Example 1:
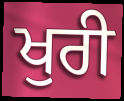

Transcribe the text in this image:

ਖੁਰੀ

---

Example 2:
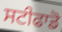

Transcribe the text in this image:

ਸਟੀਫਾਡੋ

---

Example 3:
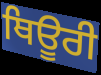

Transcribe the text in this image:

ਥਿਊਰੀ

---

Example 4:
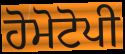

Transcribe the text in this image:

ਹੋਮੋਟੋਪੀ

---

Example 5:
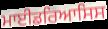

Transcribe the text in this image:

ਮਾਈਡਰਿਆਸਿਸ